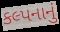
કલ્પનાનું